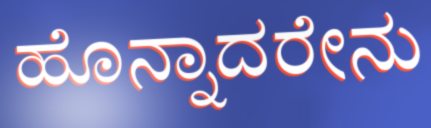
ಹೊನ್ನಾದರೇನು